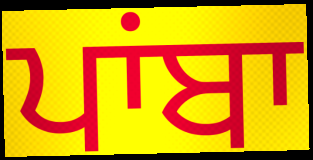
ਪਾਂਬਾ